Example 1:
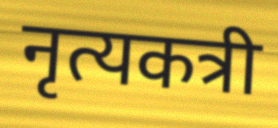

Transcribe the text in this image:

नृत्यकत्री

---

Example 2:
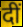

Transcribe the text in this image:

दीं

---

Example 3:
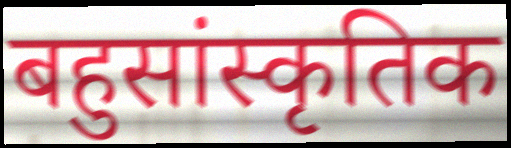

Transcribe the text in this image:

बहुसांस्कृतिक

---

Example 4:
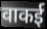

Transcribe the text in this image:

वाकई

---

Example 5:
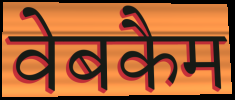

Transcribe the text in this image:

वेबकैम